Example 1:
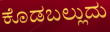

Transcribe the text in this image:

ಕೊಡಬಲ್ಲುದು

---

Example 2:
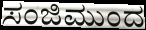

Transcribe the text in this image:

ಸಂಜಿಮುಂದ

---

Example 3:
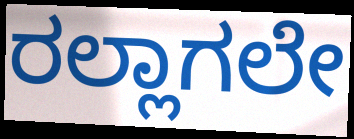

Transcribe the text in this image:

ರಲ್ಲಾಗಲೇ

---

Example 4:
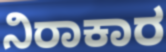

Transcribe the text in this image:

ನಿರಾಕಾರ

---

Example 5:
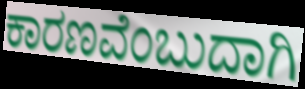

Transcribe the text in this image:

ಕಾರಣವೆಂಬುದಾಗಿ